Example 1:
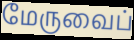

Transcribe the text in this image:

மேருவைப்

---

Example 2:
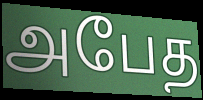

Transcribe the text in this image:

அபேத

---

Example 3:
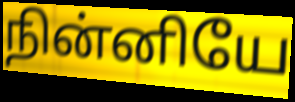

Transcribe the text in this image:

நின்னியே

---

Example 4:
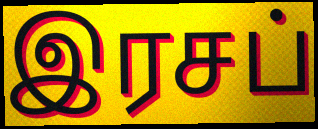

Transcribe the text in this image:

இரசப்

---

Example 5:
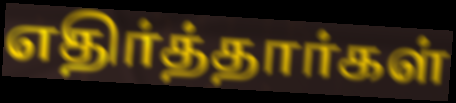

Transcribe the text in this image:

எதிர்த்தார்கள்